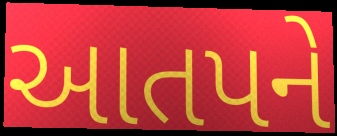
આતપને